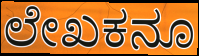
ಲೇಖಕನೂ